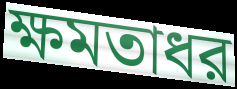
ক্ষমতাধর